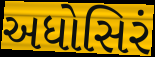
અધોસિરં